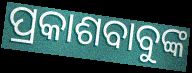
ପ୍ରକାଶବାବୁଙ୍କ